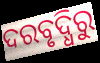
ଦରବୃଦ୍ଧିରୁ